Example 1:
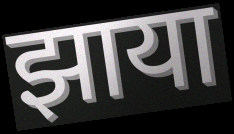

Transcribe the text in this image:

झाया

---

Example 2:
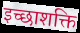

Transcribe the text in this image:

इच्छाशक्ति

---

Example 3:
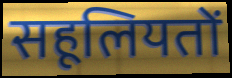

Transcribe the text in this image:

सहूलियतों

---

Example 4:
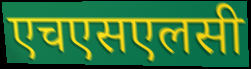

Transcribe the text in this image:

एचएसएलसी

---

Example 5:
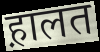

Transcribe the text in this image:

ह़ालत